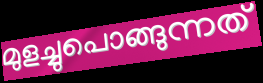
മുളച്ചുപൊങ്ങുന്നത്